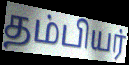
தம்பியர்